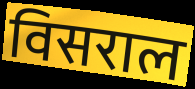
विसराल